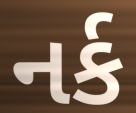
નર્ક